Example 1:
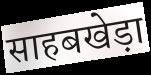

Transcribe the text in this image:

साहबखेड़ा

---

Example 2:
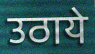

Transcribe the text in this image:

उठाये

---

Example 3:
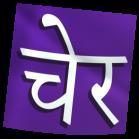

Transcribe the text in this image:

चेर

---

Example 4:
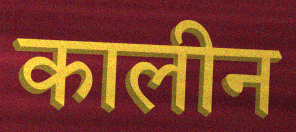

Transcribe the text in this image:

कालीन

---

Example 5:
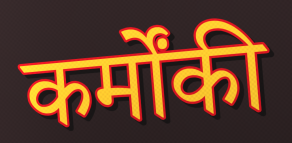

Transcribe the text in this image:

कर्मोंकी